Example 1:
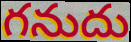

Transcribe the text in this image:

గనుదు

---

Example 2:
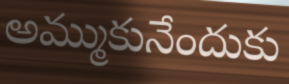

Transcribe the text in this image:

అమ్ముకునేందుకు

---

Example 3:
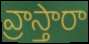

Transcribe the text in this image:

వ్రాస్తారా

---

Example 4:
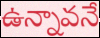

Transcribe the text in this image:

ఉన్నావనే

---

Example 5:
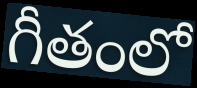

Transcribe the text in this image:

గీతంలో